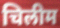
चिलीम